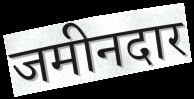
जमीनदार